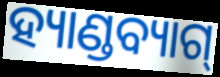
ହ୍ୟାଣ୍ଡବ୍ୟାଗ୍